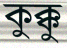
কুক্কু